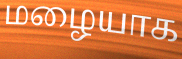
மழையாக